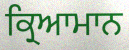
ਕ੍ਰਿਆਮਾਨ